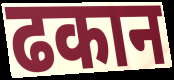
ढकान